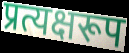
प्रत्यक्षरूप